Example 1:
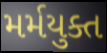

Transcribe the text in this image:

મર્મયુક્ત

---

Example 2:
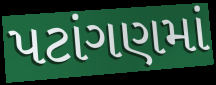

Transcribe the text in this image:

પટાંગણમાં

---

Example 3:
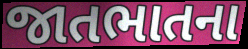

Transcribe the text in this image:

જાતભાતના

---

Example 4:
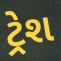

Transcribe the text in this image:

ટ્રેશ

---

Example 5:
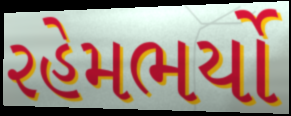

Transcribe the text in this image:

રહેમભર્યો